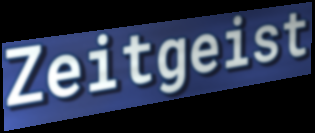
Zeitgeist